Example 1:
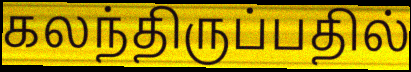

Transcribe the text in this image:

கலந்திருப்பதில்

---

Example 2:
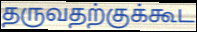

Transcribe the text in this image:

தருவதற்குக்கூட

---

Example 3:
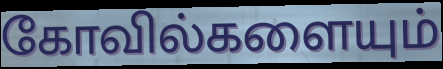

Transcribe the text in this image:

கோவில்களையும்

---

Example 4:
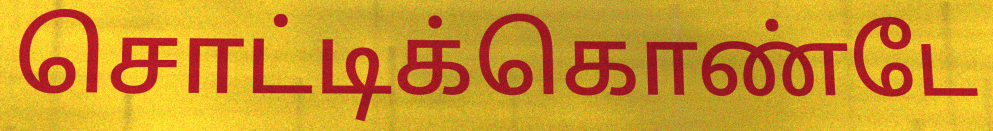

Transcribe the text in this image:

சொட்டிக்கொண்டே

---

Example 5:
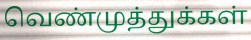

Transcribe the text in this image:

வெண்முத்துக்கள்